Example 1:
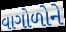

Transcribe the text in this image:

વાગોળોને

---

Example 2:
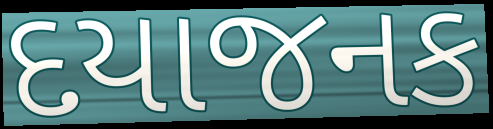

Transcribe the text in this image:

દયાજનક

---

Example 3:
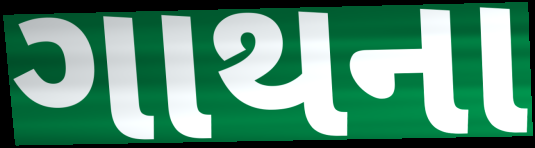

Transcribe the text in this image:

ગાથના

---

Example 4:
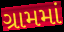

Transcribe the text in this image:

ગ્રામમાં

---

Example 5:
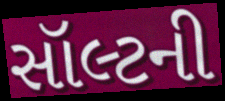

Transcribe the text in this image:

સૉલ્ટની